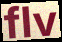
flv